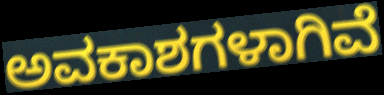
ಅವಕಾಶಗಳಾಗಿವೆ